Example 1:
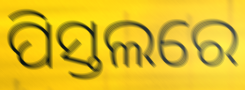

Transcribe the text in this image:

ପିସ୍ତଲରେ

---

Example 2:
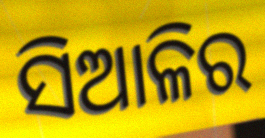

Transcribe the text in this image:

ସିଆଳିର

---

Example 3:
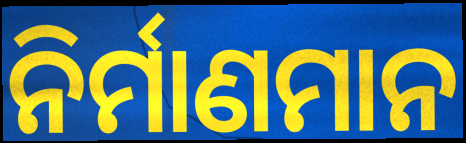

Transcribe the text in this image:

ନିର୍ମାଣମାନ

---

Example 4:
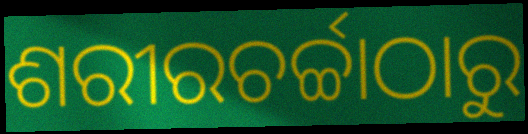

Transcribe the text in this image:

ଶରୀରଚର୍ଚ୍ଚାଠାରୁ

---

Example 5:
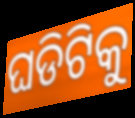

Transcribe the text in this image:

ଘଡିଟିକୁ